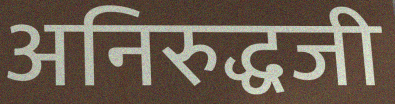
अनिरुद्धजी